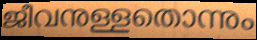
ജീവനുള്ളതൊന്നും